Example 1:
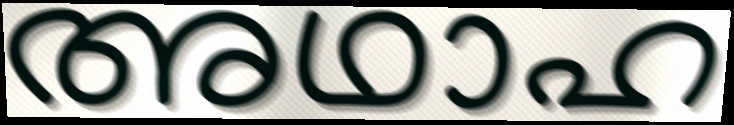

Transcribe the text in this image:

അഥാഹ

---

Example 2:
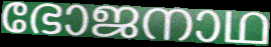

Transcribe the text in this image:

ഭോജനാഥ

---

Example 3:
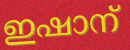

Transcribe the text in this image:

ഇഷാന്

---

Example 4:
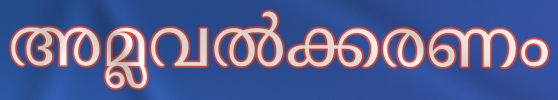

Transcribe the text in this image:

അമ്ലവൽക്കരണം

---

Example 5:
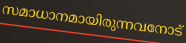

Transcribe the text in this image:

സമാധാനമായിരുന്നവനോട്